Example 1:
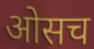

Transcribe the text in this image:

ओसच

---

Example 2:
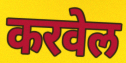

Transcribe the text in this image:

करवेल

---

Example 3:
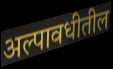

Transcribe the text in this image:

अल्पावधीतील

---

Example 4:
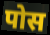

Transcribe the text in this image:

पोस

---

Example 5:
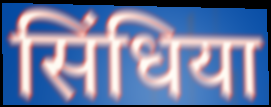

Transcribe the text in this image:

सिंधिया